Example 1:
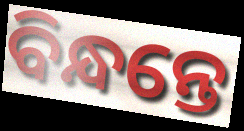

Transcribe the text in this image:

ବିନ୍ଧନ୍ତେ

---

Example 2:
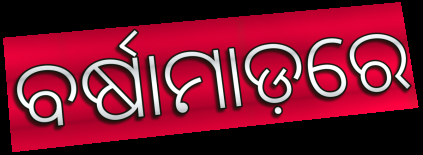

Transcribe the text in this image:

ବର୍ଷାମାଡ଼ରେ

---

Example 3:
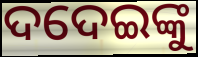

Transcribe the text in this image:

ଦଦେଇଙ୍କୁ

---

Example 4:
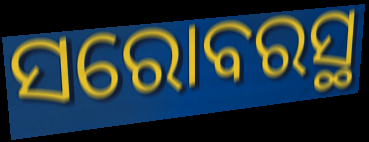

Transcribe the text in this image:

ସରୋବରସ୍ଥ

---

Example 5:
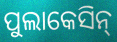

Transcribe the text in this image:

ପୁଲାକେସିନ୍